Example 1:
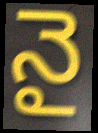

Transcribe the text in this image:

నై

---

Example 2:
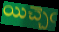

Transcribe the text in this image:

యిచ్చెఁ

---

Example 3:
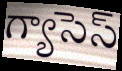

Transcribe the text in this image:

గ్యాసెస్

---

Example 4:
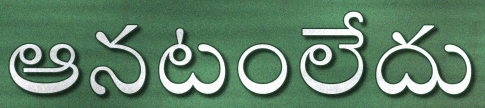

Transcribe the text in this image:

ఆనటంలేదు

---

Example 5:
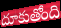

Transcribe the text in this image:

దూకుతోంది